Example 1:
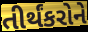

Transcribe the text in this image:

તીર્થંકરોને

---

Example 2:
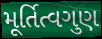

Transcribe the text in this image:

મૂર્તિત્વગુણ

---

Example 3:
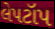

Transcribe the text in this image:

લેપટૉપ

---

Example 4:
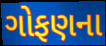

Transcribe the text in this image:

ગોફણના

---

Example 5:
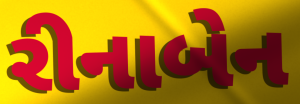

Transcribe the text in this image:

રીનાબેન